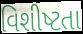
વિશીષ્ટતા